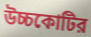
উচ্চকোটির